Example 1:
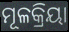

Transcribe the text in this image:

ମୂଳକ୍ରିୟା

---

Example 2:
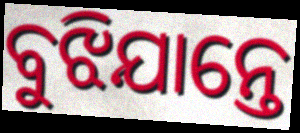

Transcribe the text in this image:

ବୁଝିଯାନ୍ତେ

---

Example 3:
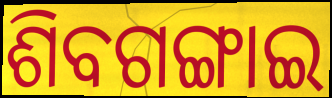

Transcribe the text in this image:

ଶିବଗଙ୍ଗାଇ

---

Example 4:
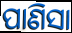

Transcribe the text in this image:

ପାଣିସା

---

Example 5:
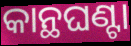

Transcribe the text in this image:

କାନ୍ଥଘଣ୍ଟା